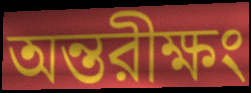
অন্তরীক্ষং